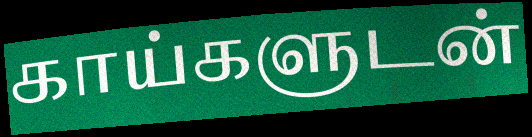
காய்களுடன்